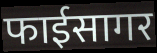
फाईसागर